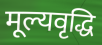
मूल्यवृद्धि